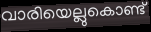
വാരിയെല്ലുകൊണ്ട്